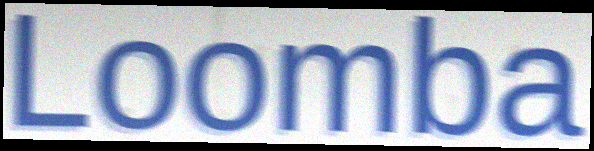
Loomba